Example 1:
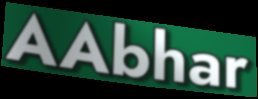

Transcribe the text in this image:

AAbhar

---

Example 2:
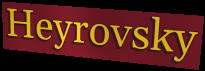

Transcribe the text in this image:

Heyrovsky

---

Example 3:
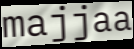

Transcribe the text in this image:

majjaa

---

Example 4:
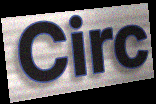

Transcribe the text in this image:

Circ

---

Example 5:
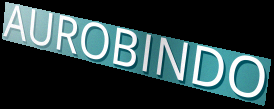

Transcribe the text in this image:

AUROBINDO